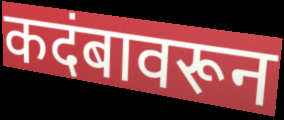
कदंबावरून